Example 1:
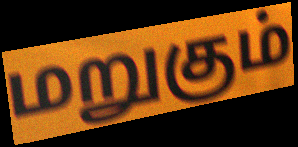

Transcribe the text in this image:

மறுகும்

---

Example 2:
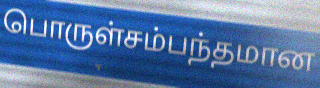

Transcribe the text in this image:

பொருள்சம்பந்தமான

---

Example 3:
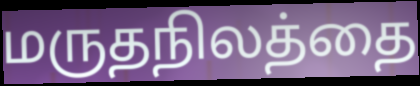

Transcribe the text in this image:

மருதநிலத்தை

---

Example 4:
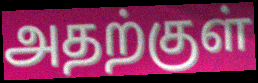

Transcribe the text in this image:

அதற்குள்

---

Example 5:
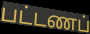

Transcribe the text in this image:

பட்டணப்